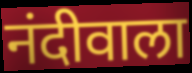
नंदीवाला